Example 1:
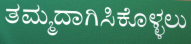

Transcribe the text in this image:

ತಮ್ಮದಾಗಿಸಿಕೊಳ್ಳಲು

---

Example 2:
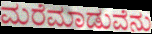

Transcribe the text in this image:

ಮರೆಮಾಡುವೆನು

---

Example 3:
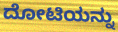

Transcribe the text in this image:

ದೋಟಿಯನ್ನು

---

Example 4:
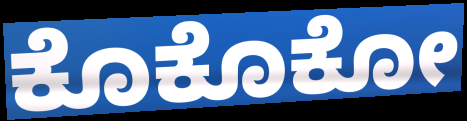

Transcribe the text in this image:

ಕೊಕೊಕೋ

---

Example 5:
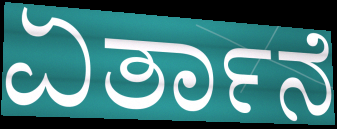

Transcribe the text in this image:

ಏರ್ತಾನೆ